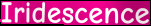
Iridescence